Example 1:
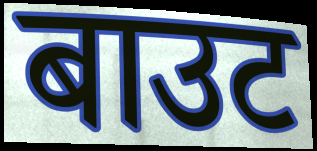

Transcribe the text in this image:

बाउट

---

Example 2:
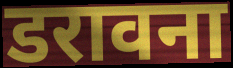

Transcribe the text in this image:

डरावना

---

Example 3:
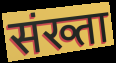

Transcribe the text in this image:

संख्ता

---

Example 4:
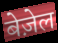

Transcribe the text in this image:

बेज़ेल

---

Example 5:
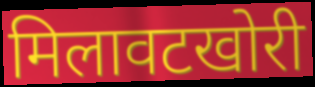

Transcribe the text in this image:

मिलावटखोरी